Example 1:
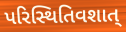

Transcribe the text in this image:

પરિસ્થિતિવશાત્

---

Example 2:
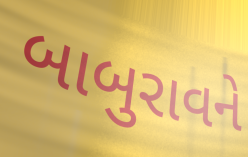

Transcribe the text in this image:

બાબુરાવને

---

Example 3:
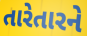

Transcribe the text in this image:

તારેતારને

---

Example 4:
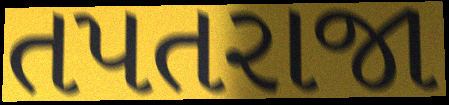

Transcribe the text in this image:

તપતરાજા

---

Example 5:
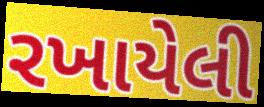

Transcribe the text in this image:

રખાયેલી